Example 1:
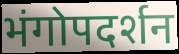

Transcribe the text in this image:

भंगोपदर्शन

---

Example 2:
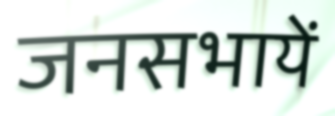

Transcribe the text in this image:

जनसभायें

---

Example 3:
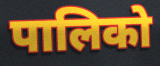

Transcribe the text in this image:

पालिको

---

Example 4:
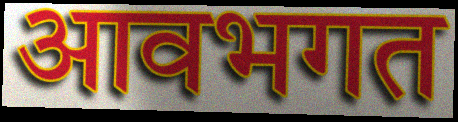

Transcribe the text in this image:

आवभगत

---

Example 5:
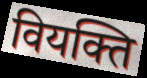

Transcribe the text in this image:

वियक्ति